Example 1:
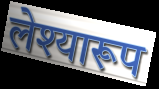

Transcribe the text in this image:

लेश्यारूप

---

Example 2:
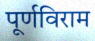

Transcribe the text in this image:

पूर्णविराम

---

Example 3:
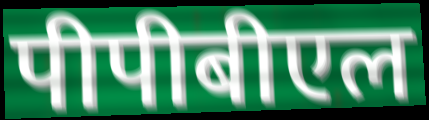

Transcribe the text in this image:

पीपीबीएल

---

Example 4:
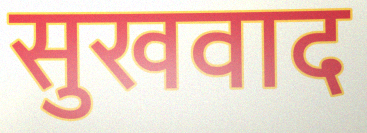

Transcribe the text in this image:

सुखवाद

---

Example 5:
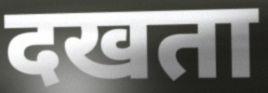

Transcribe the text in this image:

दखता